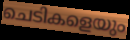
ചെടികളെയും